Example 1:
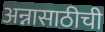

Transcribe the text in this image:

अन्नासाठीची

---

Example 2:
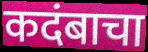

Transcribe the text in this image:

कदंबाचा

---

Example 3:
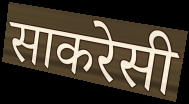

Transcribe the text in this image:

साकरेसी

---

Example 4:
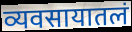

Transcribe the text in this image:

व्यवसायातलं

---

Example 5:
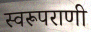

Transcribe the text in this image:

स्वरूपराणी